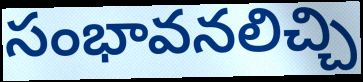
సంభావనలిచ్చి